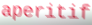
aperitif